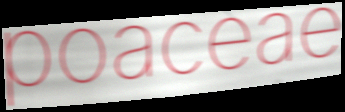
poaceae